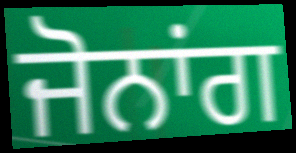
ਜੋਨਾਂਗ